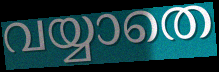
വയ്യാതെ